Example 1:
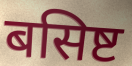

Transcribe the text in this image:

बसिष्ट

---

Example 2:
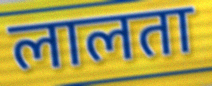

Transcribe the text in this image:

लालता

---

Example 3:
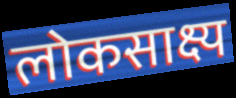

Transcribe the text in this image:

लोकसाक्ष्य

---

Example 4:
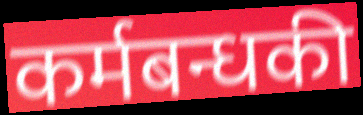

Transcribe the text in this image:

कर्मबन्धकी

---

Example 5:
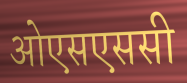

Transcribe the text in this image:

ओएसएससी